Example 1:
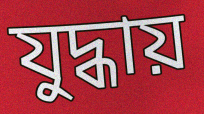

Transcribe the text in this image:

যুদ্ধায়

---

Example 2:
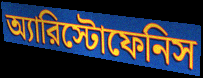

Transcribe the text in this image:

অ্যারিস্টোফেনিস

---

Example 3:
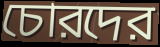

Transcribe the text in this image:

চোরদের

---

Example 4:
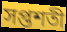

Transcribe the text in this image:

সপ্তশতী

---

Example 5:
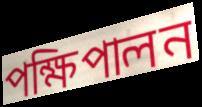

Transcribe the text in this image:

পক্ষিপালন